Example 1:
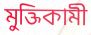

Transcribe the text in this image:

মুক্তিকামী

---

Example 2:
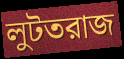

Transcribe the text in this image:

লুটতরাজ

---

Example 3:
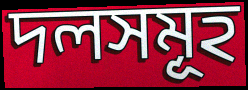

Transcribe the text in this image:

দলসমূহ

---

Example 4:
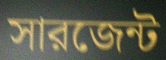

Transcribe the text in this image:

সারজেন্ট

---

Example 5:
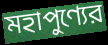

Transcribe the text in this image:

মহাপুণ্যের